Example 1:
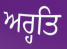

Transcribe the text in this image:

ਅਰ੍ਹਤਿ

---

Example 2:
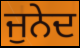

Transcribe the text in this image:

ਜੁਨੇਦ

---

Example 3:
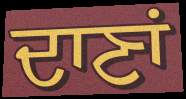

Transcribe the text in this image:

ਦਾਣਾਂ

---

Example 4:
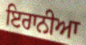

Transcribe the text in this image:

ਇਰਾਨੀਆ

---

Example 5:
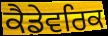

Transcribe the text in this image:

ਕੈਡੇਵਰਿਕ